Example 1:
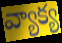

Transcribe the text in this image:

వ్యాక్య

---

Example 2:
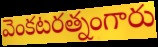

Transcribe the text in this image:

వెంకటరత్నంగారు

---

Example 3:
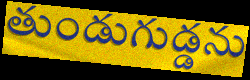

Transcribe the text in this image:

తుండుగుడ్డను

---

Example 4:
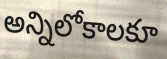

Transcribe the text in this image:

అన్నిలోకాలకూ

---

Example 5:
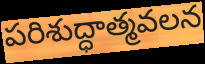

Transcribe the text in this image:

పరిశుద్ధాత్మవలన